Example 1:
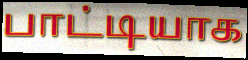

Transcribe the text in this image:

பாட்டியாக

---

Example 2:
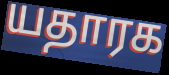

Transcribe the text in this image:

யதாரக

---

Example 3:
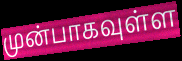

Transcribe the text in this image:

முன்பாகவுள்ள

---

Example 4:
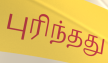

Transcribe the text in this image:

புரிந்தது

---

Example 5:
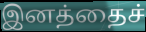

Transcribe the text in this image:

இனத்தைச்